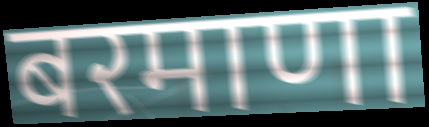
बरमाणा